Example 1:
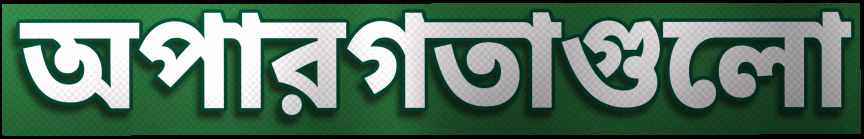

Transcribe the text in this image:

অপারগতাগুলো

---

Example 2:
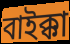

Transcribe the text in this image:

বাইক্কা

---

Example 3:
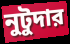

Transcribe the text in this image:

নুটুদার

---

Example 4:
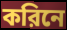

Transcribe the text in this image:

করিনে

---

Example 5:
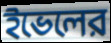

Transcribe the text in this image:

ইভেলের